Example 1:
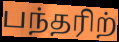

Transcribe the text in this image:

பந்தரிற்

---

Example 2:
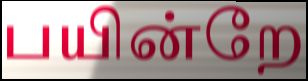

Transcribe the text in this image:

பயின்றே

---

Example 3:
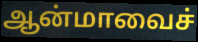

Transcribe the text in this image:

ஆன்மாவைச்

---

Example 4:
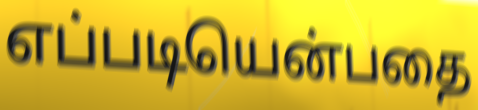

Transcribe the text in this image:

எப்படியென்பதை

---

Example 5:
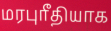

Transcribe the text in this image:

மரபுரீதியாக